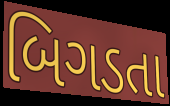
બિગડતા